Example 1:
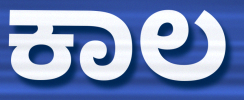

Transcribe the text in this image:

ಕಾಲ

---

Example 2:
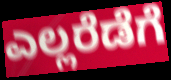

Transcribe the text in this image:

ಎಲ್ಲರೆಡೆಗೆ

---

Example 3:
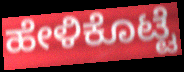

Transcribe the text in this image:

ಹೇಳಿಕೊಟ್ಟೆ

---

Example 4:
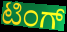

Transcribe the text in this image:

ಟಿಂಗ್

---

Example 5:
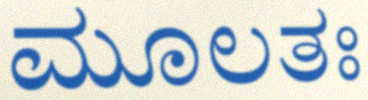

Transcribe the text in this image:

ಮೂಲತಃ